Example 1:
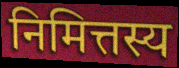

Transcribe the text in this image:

निमित्तस्य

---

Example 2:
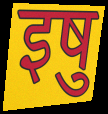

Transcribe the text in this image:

इषु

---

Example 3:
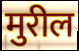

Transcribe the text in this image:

मुरील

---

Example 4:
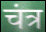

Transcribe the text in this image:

चंत्र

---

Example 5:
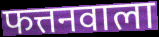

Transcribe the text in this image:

फत्तनवाला